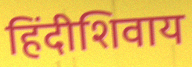
हिंदीशिवाय